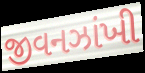
જીવનઝાંખી